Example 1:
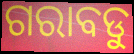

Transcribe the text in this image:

ଗରାବଡୁ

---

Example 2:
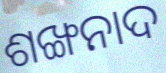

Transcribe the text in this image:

ଶଙ୍ଖନାଦ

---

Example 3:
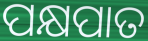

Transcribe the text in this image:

ପକ୍ଷପାତ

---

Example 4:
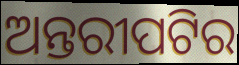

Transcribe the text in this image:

ଅନ୍ତରୀପଟିର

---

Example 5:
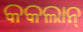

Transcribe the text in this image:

କକଲାନ୍